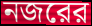
নজরের